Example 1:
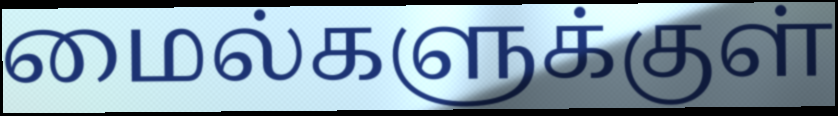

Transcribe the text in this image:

மைல்களுக்குள்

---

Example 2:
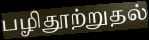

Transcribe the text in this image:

பழிதூற்றுதல்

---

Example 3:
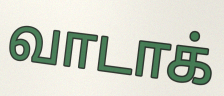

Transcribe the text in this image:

வாடாக்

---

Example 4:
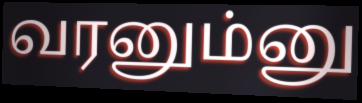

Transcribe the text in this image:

வரனும்னு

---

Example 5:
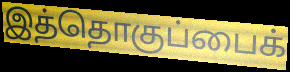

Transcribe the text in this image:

இத்தொகுப்பைக்